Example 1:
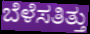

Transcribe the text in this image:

ಬೆಳೆಸತಿತ್ತು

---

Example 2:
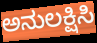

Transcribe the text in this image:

ಅನುಲಕ್ಷಿಸಿ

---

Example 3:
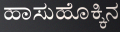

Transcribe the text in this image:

ಹಾಸುಹೊಕ್ಕಿನ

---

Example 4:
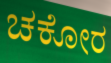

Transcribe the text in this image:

ಚಕೋರ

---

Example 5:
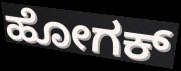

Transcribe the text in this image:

ಹೋಗಕ್